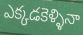
ఎక్కడకెళ్ళినా